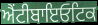
ਐਂਟੀਬਾਇਓਟਿਕ